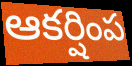
ఆకర్షింప